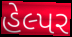
હેલ્પર